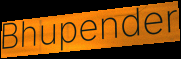
Bhupender